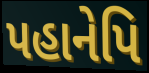
પહાનેપિ